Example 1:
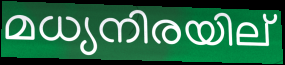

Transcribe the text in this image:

മധ്യനിരയില്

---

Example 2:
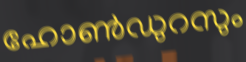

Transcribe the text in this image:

ഹോൺഡുറസും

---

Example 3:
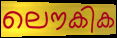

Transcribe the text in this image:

ലൌകിക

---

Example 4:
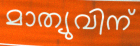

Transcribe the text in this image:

മാത്യുവിന്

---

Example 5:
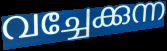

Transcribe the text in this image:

വച്ചേക്കുന്ന